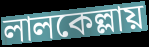
লালকেল্লায়